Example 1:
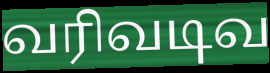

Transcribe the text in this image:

வரிவடிவ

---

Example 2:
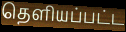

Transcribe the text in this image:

தெளியப்பட்ட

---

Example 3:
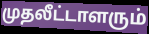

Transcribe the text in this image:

முதலீட்டாளரும்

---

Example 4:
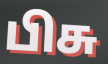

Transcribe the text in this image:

பிசு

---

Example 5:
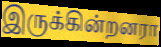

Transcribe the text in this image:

இருக்கின்றனரா